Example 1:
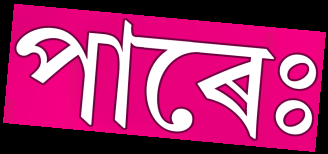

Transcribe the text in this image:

পাৰেঃ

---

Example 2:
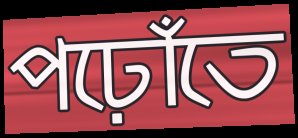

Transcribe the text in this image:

পঢ়োঁতে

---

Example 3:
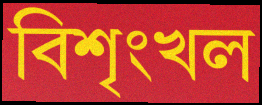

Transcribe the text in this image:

বিশৃংখল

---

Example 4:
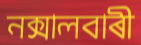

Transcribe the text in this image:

নক্সালবাৰী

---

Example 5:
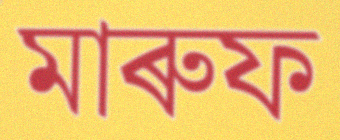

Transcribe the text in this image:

মাৰুফ